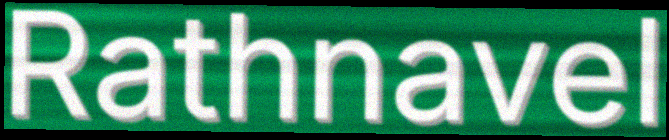
Rathnavel